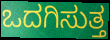
ಒದಗಿಸುತ್ತ